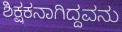
ಶಿಕ್ಷಕನಾಗಿದ್ದವನು